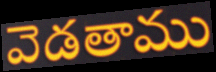
వెడతాము